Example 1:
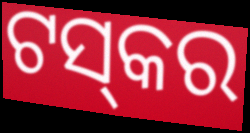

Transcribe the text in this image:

ଟସ୍‍କର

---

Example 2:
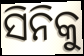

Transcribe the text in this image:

ସିନିକୁ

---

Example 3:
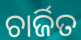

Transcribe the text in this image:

ଚାର୍ଜିତ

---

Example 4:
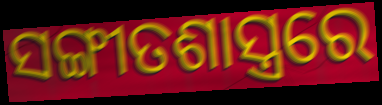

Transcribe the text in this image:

ସଙ୍ଗୀତଶାସ୍ତ୍ରରେ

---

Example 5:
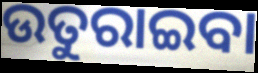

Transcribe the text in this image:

ଉତୁରାଇବା